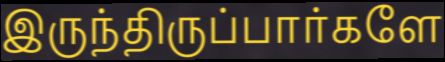
இருந்திருப்பார்களே